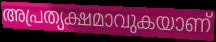
അപ്രത്യക്ഷമാവുകയാണ്